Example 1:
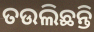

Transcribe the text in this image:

ତଉଲିଛନ୍ତି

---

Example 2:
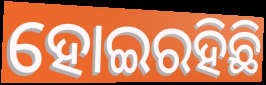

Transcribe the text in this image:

ହୋଇରହିଛି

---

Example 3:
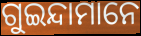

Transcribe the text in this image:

ଗୁଇନ୍ଦାମାନେ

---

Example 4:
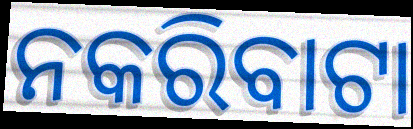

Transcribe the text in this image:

ନକରିବାଟା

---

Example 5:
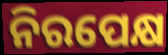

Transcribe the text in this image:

ନିରପେକ୍ଷ